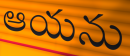
ఆయను